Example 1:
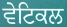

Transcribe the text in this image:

ਵੇਟਿਕਲ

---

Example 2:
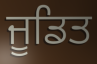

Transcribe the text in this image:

ਜੂਡਿਤ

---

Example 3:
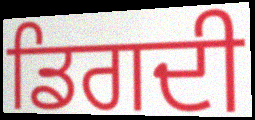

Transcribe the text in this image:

ਡਿਗਦੀ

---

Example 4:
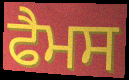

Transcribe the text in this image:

ਫੈਮਸ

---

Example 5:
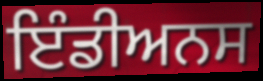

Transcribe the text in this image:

ਇੰਡੀਅਨਸ